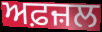
ਅਫ਼ਜ਼ਲ